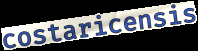
costaricensis